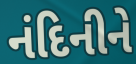
નંદિનીને